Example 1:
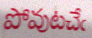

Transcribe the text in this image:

పోవుటచేఁ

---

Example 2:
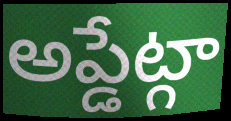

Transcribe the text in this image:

అప్డేట్గా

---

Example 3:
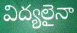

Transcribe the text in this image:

విద్యలైనా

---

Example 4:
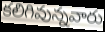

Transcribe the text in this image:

కలిగివున్నవారు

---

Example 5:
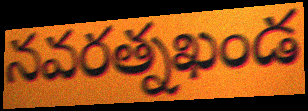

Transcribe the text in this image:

నవరత్నఖండ